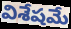
విశేషమే